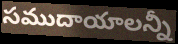
సముదాయాలన్నీ